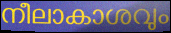
നീലാകാശവും